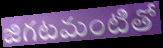
జిగటమంటితో